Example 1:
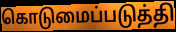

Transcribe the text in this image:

கொடுமைப்படுத்தி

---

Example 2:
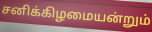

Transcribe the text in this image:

சனிக்கிழமையன்றும்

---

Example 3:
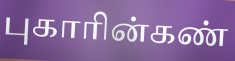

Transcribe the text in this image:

புகாரின்கண்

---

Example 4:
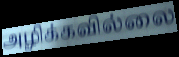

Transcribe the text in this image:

அழிக்கவில்லை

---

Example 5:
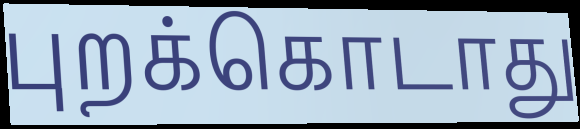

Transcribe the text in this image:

புறக்கொடாது